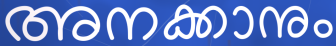
അനക്കാനും